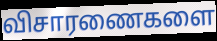
விசாரணைகளை